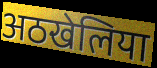
अठखेलिया